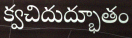
క్వచిదుద్భూతం